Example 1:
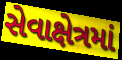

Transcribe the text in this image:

સેવાક્ષેત્રમાં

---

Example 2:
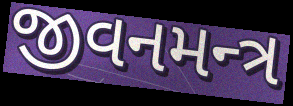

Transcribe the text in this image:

જીવનમન્ત્ર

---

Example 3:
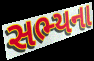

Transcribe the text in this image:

સભ્યના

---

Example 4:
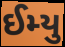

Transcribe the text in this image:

ઈમ્યુ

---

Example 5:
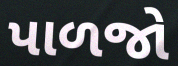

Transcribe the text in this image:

પાળજો